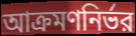
আক্রমণনির্ভর